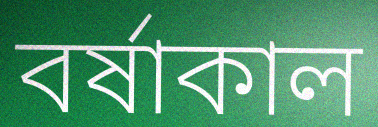
বর্ষাকাল